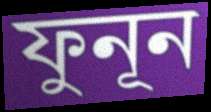
ফুনূন